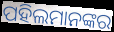
ପହିଲମାନଙ୍କର